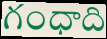
గంధాది